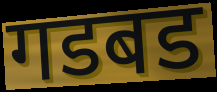
गडबड